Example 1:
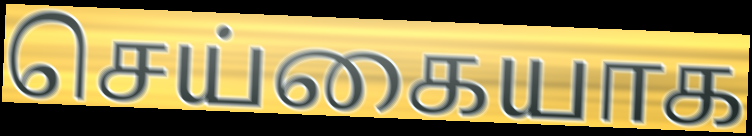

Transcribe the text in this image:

செய்கையாக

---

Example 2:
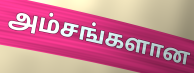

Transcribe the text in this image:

அம்சங்களான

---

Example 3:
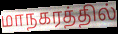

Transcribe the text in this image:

மாநகரத்தில்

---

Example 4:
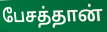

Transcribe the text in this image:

பேசத்தான்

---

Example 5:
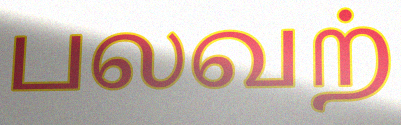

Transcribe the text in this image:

பலவற்